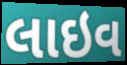
લાઇવ